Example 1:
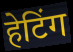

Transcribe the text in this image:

हेटिंग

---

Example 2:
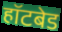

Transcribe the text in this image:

हॉटबेड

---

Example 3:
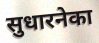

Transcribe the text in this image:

सुधारनेका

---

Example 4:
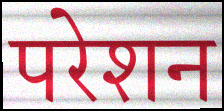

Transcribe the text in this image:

परेशन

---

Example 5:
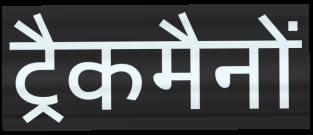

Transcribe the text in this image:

ट्रैकमैनों